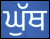
ਘੁੱਥ